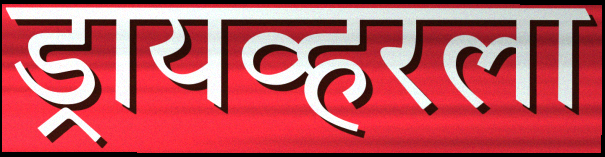
ड्रायव्हरला